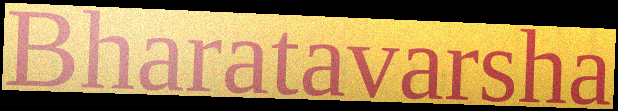
Bharatavarsha